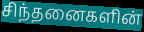
சிந்தனைகளின்